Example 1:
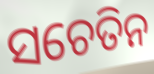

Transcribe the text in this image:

ସଚେତିନ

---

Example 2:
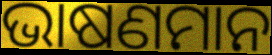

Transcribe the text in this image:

ଭାଷଣମାନ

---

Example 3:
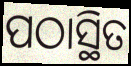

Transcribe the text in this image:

ପଠାସ୍ଥିତ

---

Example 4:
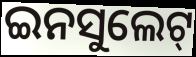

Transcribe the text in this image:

ଇନସୁଲେଟ୍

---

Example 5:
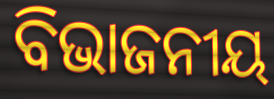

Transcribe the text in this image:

ବିଭାଜନୀୟ